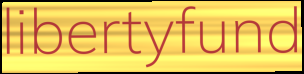
libertyfund